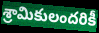
శ్రామికులందరికీ